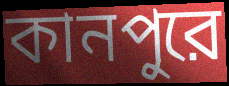
কানপুরে